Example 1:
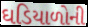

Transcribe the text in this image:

ઘડિયાળોની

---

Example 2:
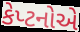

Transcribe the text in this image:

કેપ્ટનોએ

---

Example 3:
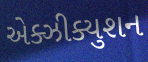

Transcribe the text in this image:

એક્ઝીક્યુશન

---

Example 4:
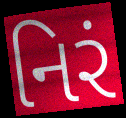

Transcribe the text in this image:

નિરં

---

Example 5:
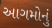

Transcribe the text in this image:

આગમોનું